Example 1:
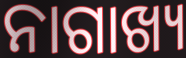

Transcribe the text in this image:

ନାଗାଖ୍ୟ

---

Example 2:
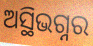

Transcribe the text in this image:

ଅସ୍ଥିଭଗ୍ନର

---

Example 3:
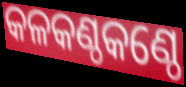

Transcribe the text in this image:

କଳକଣ୍ଠକଣ୍ଠେ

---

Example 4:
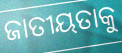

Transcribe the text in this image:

ଜାତୀୟତାକୁ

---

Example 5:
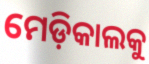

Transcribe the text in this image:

ମେଡ଼ିକାଲକୁ